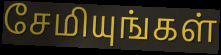
சேமியுங்கள்